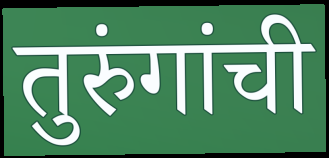
तुरुंगांची